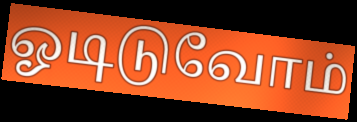
ஓடிடுவோம்